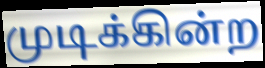
முடிக்கின்ற